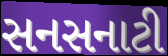
સનસનાટી